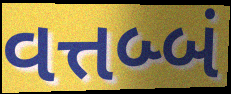
વત્તબ્બં